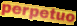
perpetuo